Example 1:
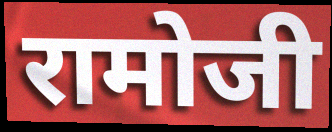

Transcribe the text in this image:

रामोजी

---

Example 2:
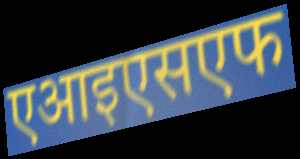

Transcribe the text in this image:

एआइएसएफ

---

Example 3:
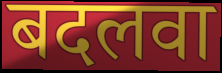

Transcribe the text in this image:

बदलवा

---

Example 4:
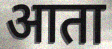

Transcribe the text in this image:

आता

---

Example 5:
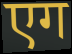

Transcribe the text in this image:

एग